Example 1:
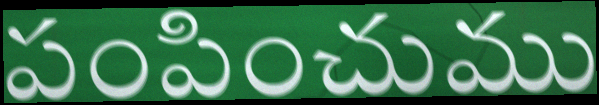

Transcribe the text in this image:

పంపించుము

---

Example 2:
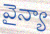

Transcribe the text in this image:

వైన్యా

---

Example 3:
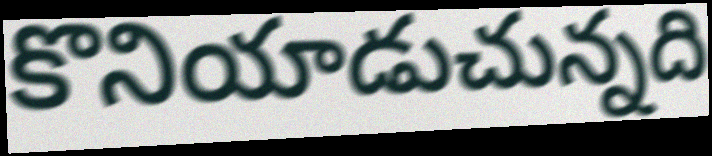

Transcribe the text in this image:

కొనియాడుచున్నది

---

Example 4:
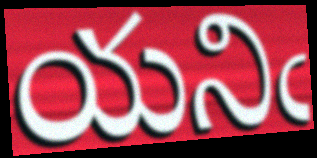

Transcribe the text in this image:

యనిఁ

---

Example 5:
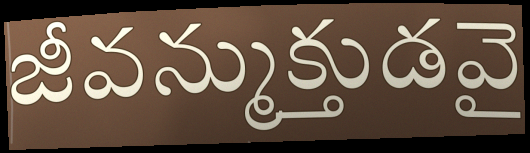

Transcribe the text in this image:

జీవన్ముక్తుడవై